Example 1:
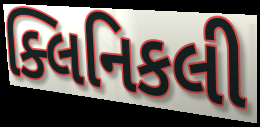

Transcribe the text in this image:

ક્લિનિકલી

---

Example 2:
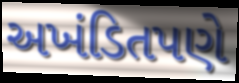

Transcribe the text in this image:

અખંડિતપણે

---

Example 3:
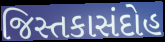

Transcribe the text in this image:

જિસ્તકાસંદોહ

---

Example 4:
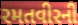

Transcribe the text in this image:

રમતવીરની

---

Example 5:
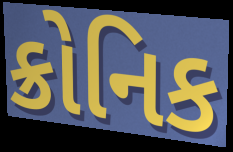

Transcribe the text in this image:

ક્રોનિક